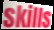
skills